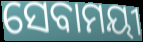
ସେବାମୟୀ